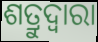
ଶତ୍ରୁଦ୍ଵାରା